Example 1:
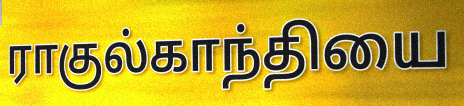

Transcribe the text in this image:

ராகுல்காந்தியை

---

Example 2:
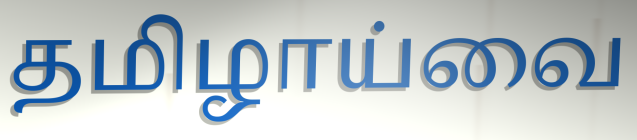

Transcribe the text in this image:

தமிழாய்வை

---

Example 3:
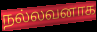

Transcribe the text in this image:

நல்லவனாக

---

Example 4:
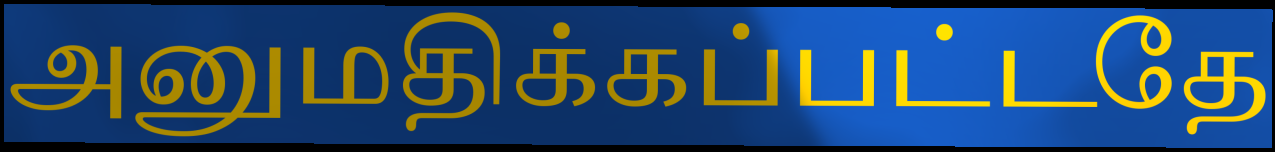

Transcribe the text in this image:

அனுமதிக்கப்பட்டதே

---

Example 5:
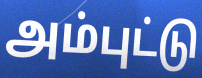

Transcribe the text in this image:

அம்புட்டு